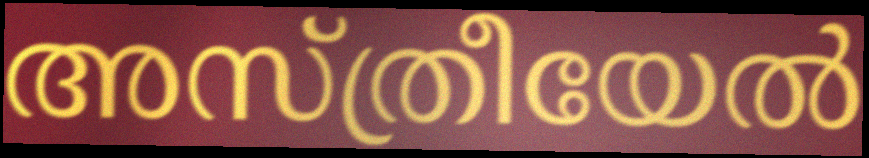
അസ്ത്രീയേൽ